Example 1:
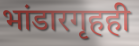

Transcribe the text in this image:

भांडारगृहही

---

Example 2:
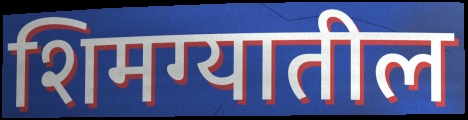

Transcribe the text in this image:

शिमग्यातील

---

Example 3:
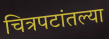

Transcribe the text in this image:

चित्रपटांतल्या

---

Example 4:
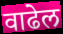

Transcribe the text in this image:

वाढेल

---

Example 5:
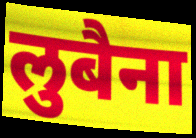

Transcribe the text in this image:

लुबैना